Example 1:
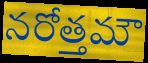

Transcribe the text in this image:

నరోత్తమౌ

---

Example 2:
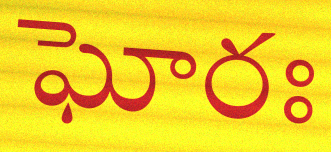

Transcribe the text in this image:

ఘోరః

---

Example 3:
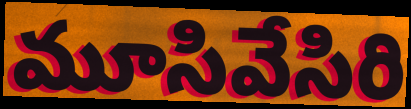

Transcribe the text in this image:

మూసివేసిరి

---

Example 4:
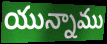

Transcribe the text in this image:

యున్నాము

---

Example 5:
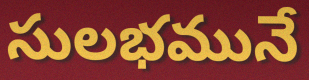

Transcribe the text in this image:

సులభమునే